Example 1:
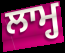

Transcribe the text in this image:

ਲਾਮ੍ਹ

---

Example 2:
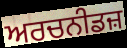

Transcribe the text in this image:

ਅਰਚਨੀਡਜ਼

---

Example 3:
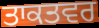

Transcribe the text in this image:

ਤਾਕਤਵਰ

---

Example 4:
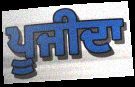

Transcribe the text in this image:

ਪੂਜੀਦਾ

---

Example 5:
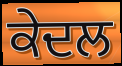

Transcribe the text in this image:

ਕੇਦਲ